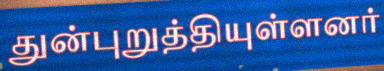
துன்புறுத்தியுள்ளனர்